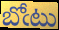
బోఁటు